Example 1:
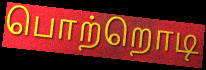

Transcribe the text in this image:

பொற்றொடி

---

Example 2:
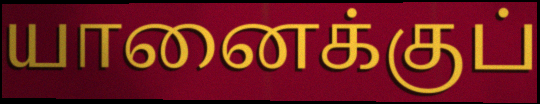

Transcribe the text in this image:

யானைக்குப்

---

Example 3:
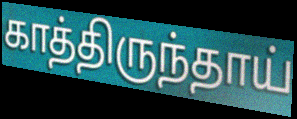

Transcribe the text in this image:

காத்திருந்தாய்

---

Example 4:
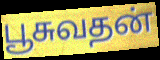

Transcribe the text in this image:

பூசுவதன்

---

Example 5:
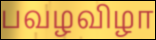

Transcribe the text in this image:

பவழவிழா